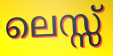
ലെസ്സ്